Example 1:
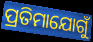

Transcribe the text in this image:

ପ୍ରତିମାଯୋଗୁଁ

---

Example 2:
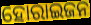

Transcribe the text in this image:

ହୋରାଇଜନ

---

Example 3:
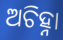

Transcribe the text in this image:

ଅଚିହ୍ନା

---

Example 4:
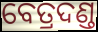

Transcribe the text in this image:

ବେତ୍ରଦଣ୍ଡ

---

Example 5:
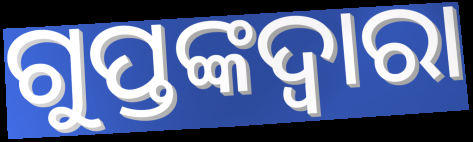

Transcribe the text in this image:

ଗୁପ୍ତଙ୍କଦ୍ୱାରା